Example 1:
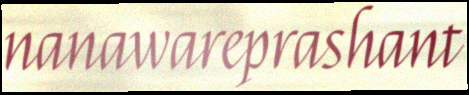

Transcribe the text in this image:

nanawareprashant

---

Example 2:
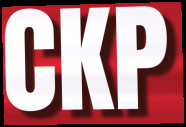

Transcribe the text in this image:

CKP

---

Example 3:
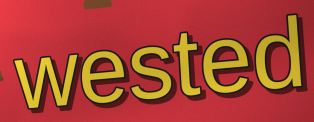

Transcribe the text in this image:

wested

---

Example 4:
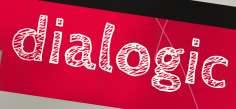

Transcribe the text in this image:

dialogic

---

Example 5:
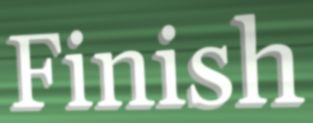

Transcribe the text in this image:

Finish